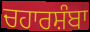
ਚਹਾਰਸ਼ੰਬਾ